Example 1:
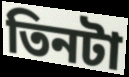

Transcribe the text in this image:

তিনটা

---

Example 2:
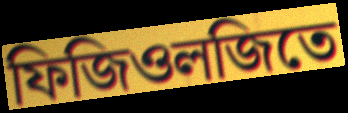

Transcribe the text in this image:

ফিজিওলজিতে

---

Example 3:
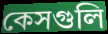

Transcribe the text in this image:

কেসগুলি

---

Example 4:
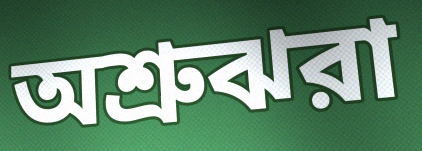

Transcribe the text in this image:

অশ্রুঝরা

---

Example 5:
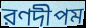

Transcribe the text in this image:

রণদীপম